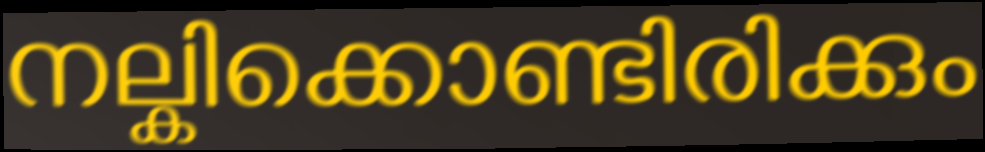
നല്കിക്കൊണ്ടിരിക്കും